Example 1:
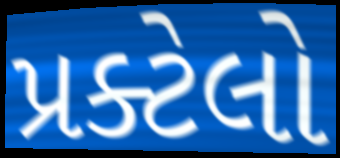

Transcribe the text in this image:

પ્રક્ટેલો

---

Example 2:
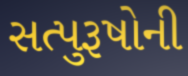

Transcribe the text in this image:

સત્પુરૂષોની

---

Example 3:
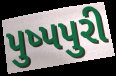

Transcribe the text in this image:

પુષ્પપુરી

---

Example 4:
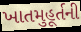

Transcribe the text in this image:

ખાતમુહૂર્તની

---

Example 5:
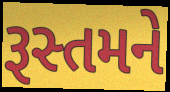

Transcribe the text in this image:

રૂસ્તમને